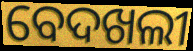
ବେଦଖଲୀ